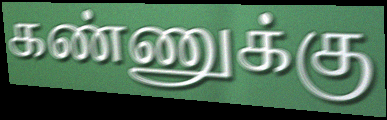
கண்ணுக்கு